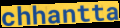
chhantta